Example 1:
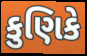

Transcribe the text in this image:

કુણિકે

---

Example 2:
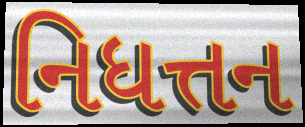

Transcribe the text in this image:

નિધત્તન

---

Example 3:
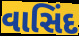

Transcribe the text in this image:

વાસિંદ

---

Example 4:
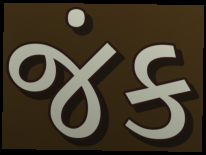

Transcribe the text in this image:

જંક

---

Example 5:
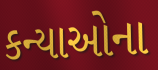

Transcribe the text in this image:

કન્યાઓના